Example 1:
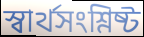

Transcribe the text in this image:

স্বার্থসংশ্নিষ্ট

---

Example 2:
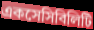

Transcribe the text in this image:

একসেসিবিলিটি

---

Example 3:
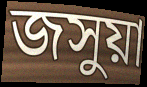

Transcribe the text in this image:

জসুয়া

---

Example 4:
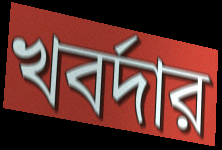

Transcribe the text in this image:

খবর্দার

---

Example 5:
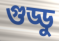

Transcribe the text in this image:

গুড্ডু